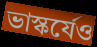
ভাস্কর্যেও